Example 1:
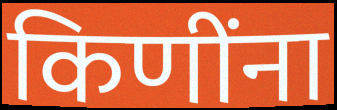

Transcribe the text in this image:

किणींना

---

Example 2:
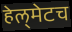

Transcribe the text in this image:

हेल्मेटच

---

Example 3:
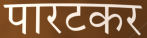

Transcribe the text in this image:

पारटकर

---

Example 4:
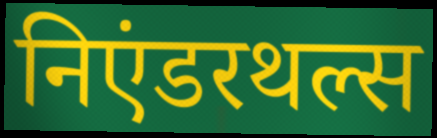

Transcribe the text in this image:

निएंडरथल्स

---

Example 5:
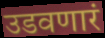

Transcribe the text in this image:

उडवणारं